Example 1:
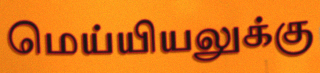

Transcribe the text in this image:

மெய்யியலுக்கு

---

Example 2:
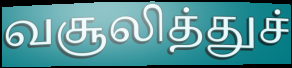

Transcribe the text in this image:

வசூலித்துச்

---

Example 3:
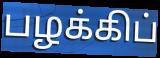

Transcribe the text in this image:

பழக்கிப்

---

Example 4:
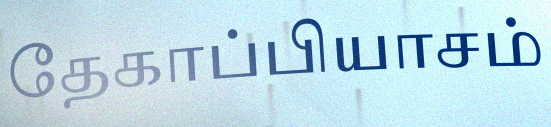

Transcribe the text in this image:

தேகாப்பியாசம்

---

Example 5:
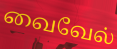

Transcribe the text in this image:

வைவேல்